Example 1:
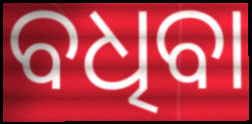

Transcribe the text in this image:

ବଧିବା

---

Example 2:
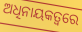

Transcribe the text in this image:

ଅଧିନାୟକତ୍ବରେ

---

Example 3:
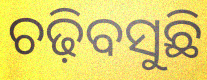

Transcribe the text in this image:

ଚଢ଼ିବସୁଛି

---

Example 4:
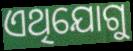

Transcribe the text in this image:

ଏଥିଯୋଗୁ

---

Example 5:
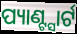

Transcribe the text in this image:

ପ୍ୟାଣ୍ଟ୍ସାର୍ଟ